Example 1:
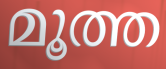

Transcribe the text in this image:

മൂത്ത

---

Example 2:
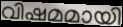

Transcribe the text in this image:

വിഷമമായി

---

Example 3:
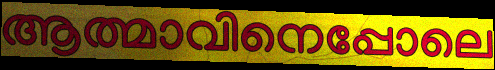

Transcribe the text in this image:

ആത്മാവിനെപ്പോലെ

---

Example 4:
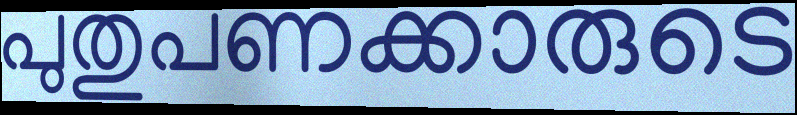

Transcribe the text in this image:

പുതുപണക്കാരുടെ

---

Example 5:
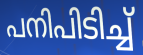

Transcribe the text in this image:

പനിപിടിച്ച്